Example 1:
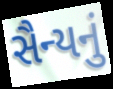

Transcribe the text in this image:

સૈન્યનું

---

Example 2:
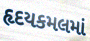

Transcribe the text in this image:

હૃદયકમલમાં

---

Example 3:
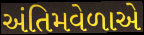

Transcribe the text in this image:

અંતિમવેળાએ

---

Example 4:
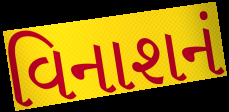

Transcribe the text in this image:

વિનાશનં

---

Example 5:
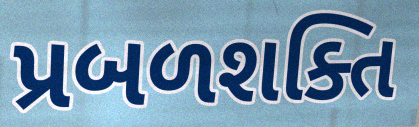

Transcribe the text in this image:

પ્રબળશક્તિ